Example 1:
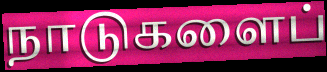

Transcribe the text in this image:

நாடுகளைப்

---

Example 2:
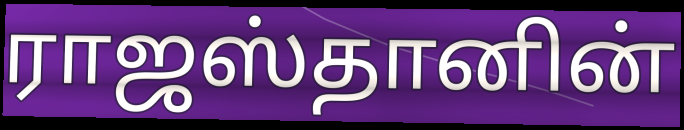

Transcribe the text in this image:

ராஜஸ்தானின்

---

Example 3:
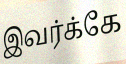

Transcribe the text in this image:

இவர்க்கே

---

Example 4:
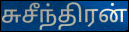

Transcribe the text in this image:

சுசீந்திரன்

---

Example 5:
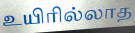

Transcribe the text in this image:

உயிரில்லாத